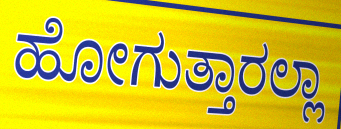
ಹೋಗುತ್ತಾರಲ್ಲಾ